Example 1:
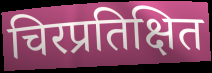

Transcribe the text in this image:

चिरप्रतिक्षित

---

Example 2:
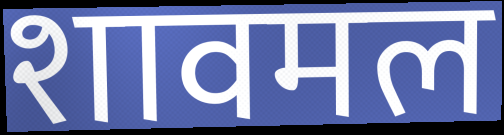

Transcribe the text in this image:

शावमल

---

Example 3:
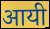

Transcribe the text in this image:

आयी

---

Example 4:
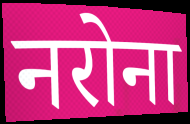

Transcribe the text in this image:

नरोना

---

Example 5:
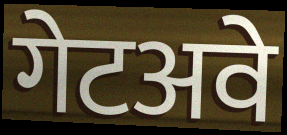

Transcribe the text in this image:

गेटअवे